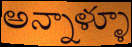
అన్నాళ్ళూ